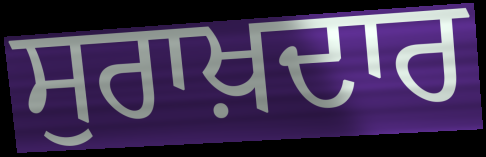
ਸੁਰਾਖ਼ਦਾਰ